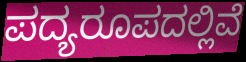
ಪದ್ಯರೂಪದಲ್ಲಿವೆ